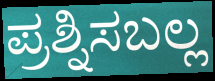
ಪ್ರಶ್ನಿಸಬಲ್ಲ